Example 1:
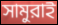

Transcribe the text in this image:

সামুরাই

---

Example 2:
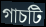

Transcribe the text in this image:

গাচটি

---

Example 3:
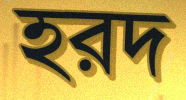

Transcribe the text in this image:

হরদ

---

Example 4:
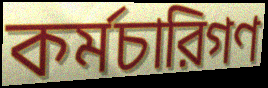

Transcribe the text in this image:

কর্মচারিগণ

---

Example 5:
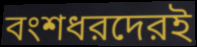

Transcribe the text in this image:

বংশধরদেরই